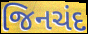
જિનચંદ